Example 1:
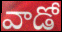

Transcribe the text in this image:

వాడో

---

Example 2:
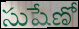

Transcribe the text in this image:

సుషేణో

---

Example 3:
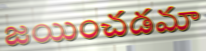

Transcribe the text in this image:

జయించడమా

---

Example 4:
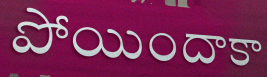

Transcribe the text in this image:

పోయిందాకా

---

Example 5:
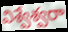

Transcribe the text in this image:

విశ్వేశ్వరా